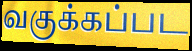
வகுக்கப்பட